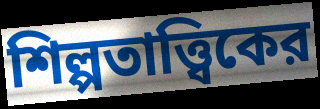
শিল্পতাত্ত্বিকের